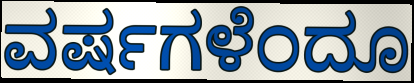
ವರ್ಷಗಳೆಂದೂ